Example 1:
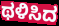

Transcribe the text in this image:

ಥಳಿಸಿದ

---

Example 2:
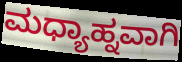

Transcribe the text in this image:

ಮಧ್ಯಾಹ್ನವಾಗಿ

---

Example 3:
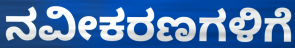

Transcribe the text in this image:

ನವೀಕರಣಗಳಿಗೆ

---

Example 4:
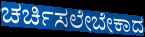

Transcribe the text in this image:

ಚರ್ಚಿಸಲೇಬೇಕಾದ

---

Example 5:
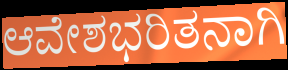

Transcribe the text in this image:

ಆವೇಶಭರಿತನಾಗಿ